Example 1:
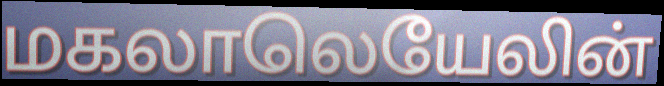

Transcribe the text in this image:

மகலாலெயேலின்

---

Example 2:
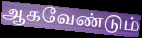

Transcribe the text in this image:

ஆகவேண்டும்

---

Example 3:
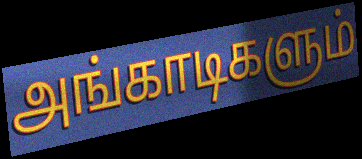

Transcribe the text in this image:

அங்காடிகளும்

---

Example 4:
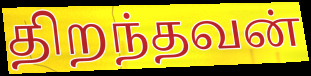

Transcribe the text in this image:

திறந்தவன்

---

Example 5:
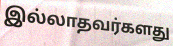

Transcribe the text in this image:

இல்லாதவர்களது